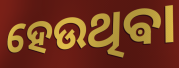
ହେଉଥିଵା